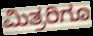
ಮಿತ್ರರಿಗೂ